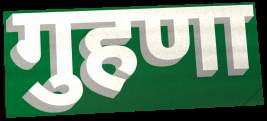
गुहणा